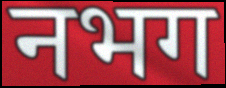
नभग